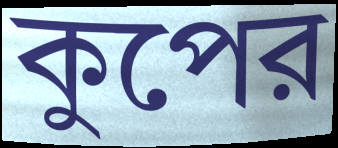
কুপের